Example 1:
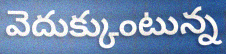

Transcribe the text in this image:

వెదుక్కుంటున్న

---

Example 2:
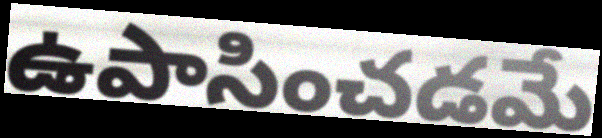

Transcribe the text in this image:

ఉపాసించడమే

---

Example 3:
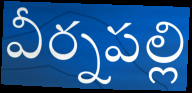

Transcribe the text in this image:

వీర్నపల్లి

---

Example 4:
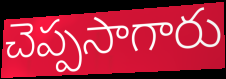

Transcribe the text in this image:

చెప్పసాగారు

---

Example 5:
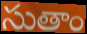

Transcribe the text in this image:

సుతాం